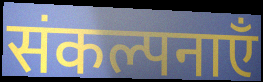
संकल्पनाएँ